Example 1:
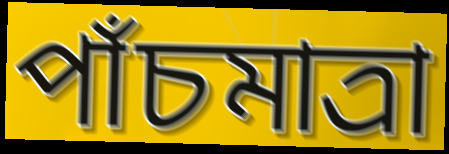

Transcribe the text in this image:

পাঁচমাত্রা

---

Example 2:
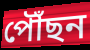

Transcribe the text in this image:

পৌঁছন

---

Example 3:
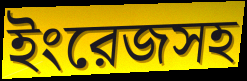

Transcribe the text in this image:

ইংরেজসহ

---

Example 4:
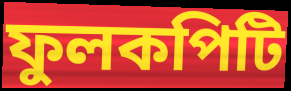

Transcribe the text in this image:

ফুলকপিটি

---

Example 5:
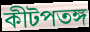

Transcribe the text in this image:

কীটপতঙ্গ